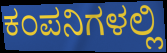
ಕಂಪನಿಗಳಲ್ಲಿ